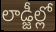
లాడ్జీల్లో